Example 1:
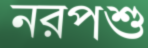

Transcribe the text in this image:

নরপশু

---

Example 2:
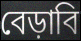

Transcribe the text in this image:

বেড়াবি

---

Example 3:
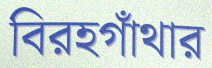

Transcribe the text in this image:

বিরহগাঁথার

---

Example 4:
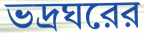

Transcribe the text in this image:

ভদ্রঘরের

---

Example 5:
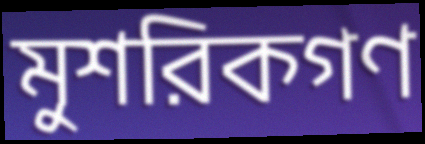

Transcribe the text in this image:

মুশরিকগণ